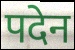
पदेन